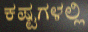
ಕಷ್ಟಗಳಲ್ಲಿ